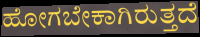
ಹೋಗಬೇಕಾಗಿರುತ್ತದೆ